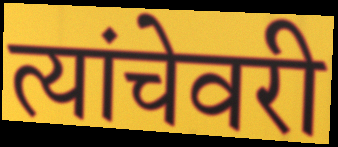
त्यांचेवरी